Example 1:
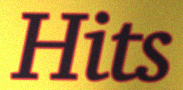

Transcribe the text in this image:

Hits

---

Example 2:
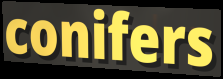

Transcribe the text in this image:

conifers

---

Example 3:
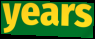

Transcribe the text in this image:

years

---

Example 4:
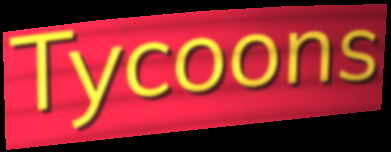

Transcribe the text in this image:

Tycoons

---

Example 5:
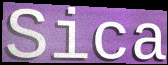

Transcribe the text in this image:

Sica